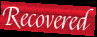
Recovered